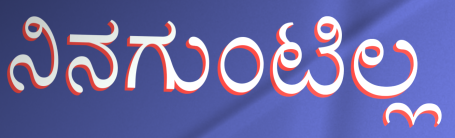
ನಿನಗುಂಟಿಲ್ಲ